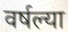
वर्षल्या